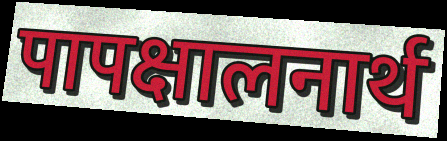
पापक्षालनार्थ